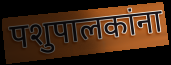
पशुपालकांना